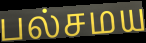
பல்சமய